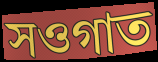
সওগাত